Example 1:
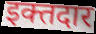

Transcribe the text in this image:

इक्तदार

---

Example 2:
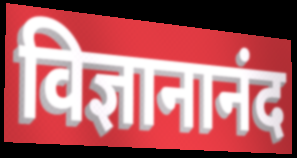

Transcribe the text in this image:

विज्ञानानंद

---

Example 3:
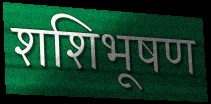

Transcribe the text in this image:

शशिभूषण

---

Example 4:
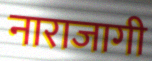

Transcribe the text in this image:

नाराजागी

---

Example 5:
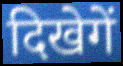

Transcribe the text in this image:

दिखेगें